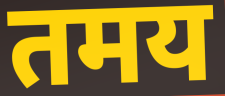
तमय